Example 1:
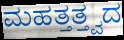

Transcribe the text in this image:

ಮಹತ್ತತ್ತ್ವದ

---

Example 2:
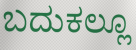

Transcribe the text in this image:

ಬದುಕಲ್ಲೂ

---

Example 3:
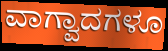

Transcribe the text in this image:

ವಾಗ್ವಾದಗಳೂ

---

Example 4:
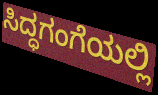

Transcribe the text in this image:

ಸಿದ್ಧಗಂಗೆಯಲ್ಲಿ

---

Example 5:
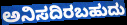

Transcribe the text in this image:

ಅನಿಸದಿರಬಹುದು